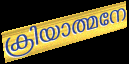
ക്രിയാത്മനേ